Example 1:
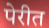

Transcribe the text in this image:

पेरीत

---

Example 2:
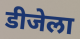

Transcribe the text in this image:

डीजेला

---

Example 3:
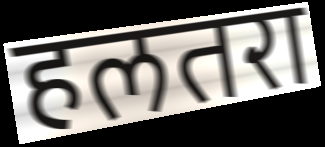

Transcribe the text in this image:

हलतरा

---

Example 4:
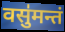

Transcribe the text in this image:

वसु॑मन्तं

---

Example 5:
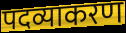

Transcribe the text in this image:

पदव्याकरण